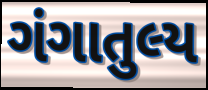
ગંગાતુલ્ય